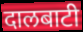
दालबाटी